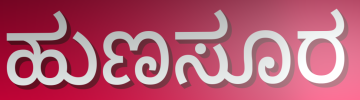
ಹುಣಸೂರ